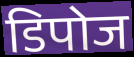
डिपोज